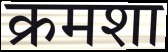
क्रमशा